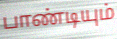
பாண்டியும்